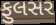
ફુલસર